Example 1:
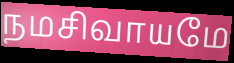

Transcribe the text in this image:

நமசிவாயமே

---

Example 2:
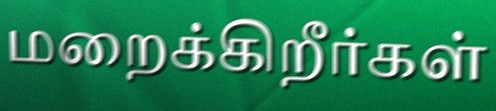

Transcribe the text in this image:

மறைக்கிறீர்கள்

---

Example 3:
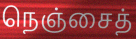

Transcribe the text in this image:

நெஞ்சைத்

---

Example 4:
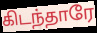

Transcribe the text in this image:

கிடந்தாரே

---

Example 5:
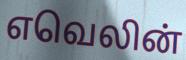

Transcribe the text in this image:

எவெலின்